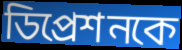
ডিপ্রেশনকে